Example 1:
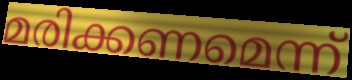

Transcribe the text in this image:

മരിക്കണമെന്ന്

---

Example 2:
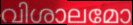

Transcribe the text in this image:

വിശാലമോ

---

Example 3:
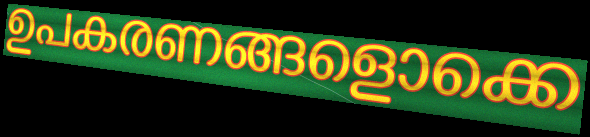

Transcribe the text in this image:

ഉപകരണങ്ങളൊക്കെ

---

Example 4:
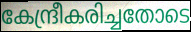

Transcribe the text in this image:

കേന്ദ്രീകരിച്ചതോടെ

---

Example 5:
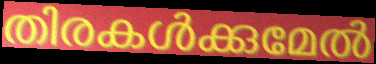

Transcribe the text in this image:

തിരകൾക്കുമേൽ